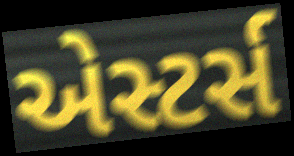
એસ્ટર્સ